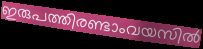
ഇരുപത്തിരണ്ടാംവയസിൽ